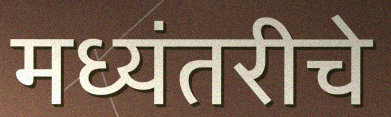
मध्यंतरीचे